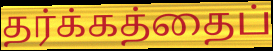
தர்க்கத்தைப்